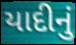
યાદીનું